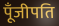
पूँजीपति